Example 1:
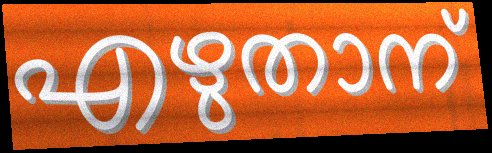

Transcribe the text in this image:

എഴുതാന്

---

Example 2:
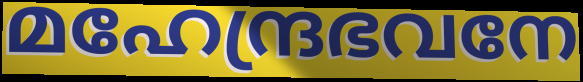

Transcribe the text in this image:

മഹേന്ദ്രഭവനേ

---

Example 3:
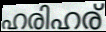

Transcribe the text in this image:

ഹരിഹര്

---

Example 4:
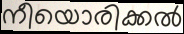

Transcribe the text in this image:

നീയൊരിക്കൽ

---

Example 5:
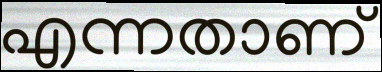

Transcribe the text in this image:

എന്നതാണ്